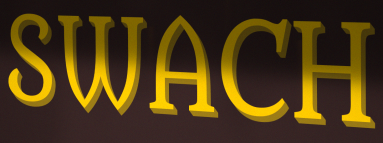
SWACH